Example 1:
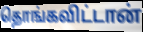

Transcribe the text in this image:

தொங்கவிட்டான்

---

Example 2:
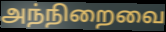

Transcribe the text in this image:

அந்நிறைவை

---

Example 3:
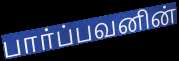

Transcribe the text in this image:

பார்ப்பவனின்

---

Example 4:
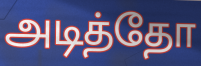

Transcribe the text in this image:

அடித்தோ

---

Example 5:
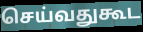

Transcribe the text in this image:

செய்வதுகூட